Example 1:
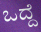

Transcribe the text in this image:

ಒದ್ದೆ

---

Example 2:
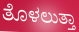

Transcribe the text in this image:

ತೊಳಲುತ್ತಾ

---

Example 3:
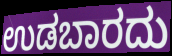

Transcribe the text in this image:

ಉಡಬಾರದು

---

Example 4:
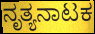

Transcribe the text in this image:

ನೃತ್ಯನಾಟಕ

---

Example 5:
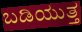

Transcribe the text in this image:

ಬಡಿಯುತ್ತ